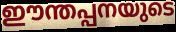
ഈന്തപ്പനയുടെ